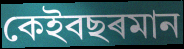
কেইবছৰমান